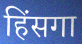
हिंसगा